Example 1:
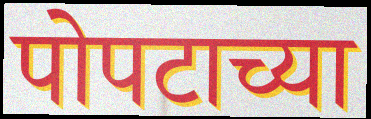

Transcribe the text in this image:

पोपटाच्या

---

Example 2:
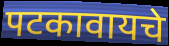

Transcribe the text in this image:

पटकावायचे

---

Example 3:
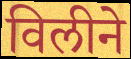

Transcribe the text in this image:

विलीने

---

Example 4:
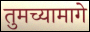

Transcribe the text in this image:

तुमच्यामागे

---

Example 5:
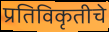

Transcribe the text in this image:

प्रतिविकृतीचे